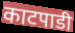
काटपाडी